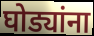
घोड्यांना